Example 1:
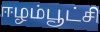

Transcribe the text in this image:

ஈழம்பூட்சி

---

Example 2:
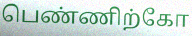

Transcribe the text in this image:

பெண்ணிற்கோ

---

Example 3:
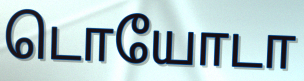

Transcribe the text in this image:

டொயோடா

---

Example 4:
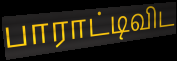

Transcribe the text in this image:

பாராட்டிவிட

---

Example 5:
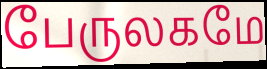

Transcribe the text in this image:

பேருலகமே